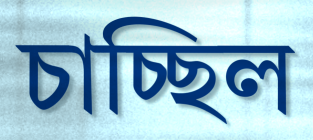
চাচ্ছিল